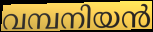
വമ്പനിയൻ